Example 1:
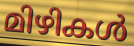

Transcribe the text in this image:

മിഴികൾ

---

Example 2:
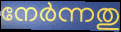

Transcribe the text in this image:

നേർന്നതു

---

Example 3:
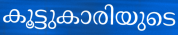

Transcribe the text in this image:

കൂട്ടുകാരിയുടെ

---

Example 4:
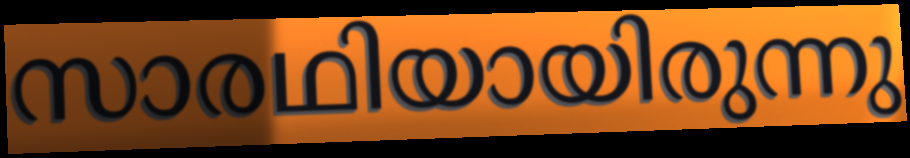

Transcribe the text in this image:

സാരഥിയായിരുന്നു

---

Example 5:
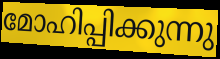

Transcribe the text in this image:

മോഹിപ്പിക്കുന്നു